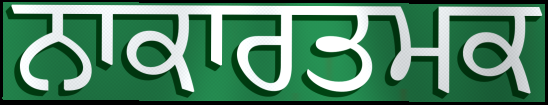
ਨਾਕਾਰਤਮਕ